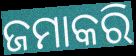
ଜମାକରି